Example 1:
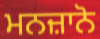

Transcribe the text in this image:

ਮਨਜ਼ਾਨੋ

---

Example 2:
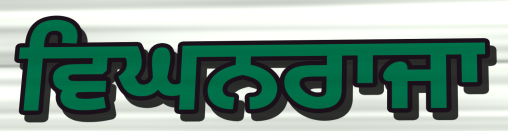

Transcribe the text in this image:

ਵਿਘਨਰਾਜਾ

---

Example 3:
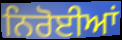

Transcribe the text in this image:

ਨਿਰੋਈਆਂ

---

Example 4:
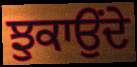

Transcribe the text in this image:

ਝੁਕਾਉੰਦੇ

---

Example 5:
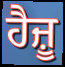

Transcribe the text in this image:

ਹੈਜ਼ੂ